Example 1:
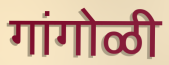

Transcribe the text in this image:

गांगोळी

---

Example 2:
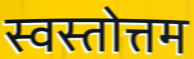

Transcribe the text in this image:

स्वस्तोत्तम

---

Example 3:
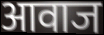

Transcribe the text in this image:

आवाज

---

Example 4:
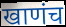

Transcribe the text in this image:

खाणंच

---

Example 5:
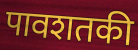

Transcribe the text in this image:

पावशतकी